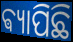
ଵ୍ୟାପିଛି